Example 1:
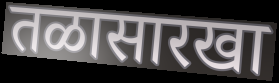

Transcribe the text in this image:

तळासारखा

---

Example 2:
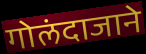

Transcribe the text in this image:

गोलंदाजाने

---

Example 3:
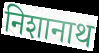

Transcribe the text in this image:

निशानाथ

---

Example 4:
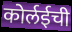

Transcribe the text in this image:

कोर्लईची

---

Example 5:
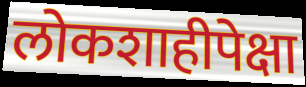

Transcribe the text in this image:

लोकशाहीपेक्षा